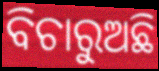
ବିଚାରୁଅଛି